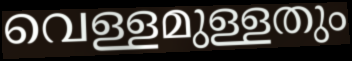
വെള്ളമുള്ളതും